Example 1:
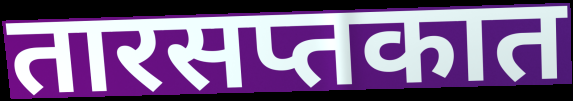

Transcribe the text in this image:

तारसप्तकात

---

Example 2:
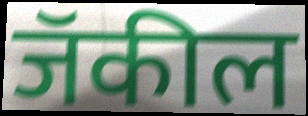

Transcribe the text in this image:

जॅकील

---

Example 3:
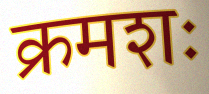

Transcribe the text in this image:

क्रमशः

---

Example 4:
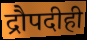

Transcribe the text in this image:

द्रौपदीही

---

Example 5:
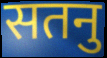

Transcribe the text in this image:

सतनु